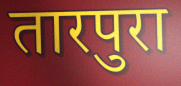
तारपुरा